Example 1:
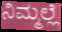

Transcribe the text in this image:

ನಿಮ್ಮಲ್ಲೆ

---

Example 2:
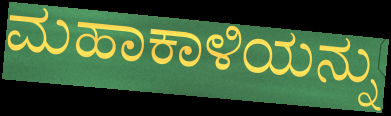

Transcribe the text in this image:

ಮಹಾಕಾಳಿಯನ್ನು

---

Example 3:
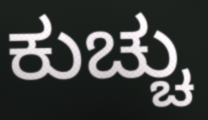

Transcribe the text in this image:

ಕುಚ್ಚು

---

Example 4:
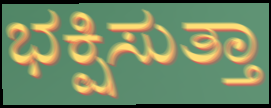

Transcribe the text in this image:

ಭಕ್ಷಿಸುತ್ತಾ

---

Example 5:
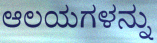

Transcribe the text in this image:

ಆಲಯಗಳನ್ನು